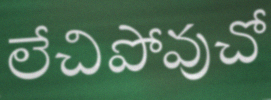
లేచిపోవుచో